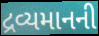
દ્રવ્યમાનની